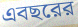
এবছরের